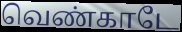
வெண்காடே